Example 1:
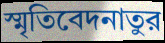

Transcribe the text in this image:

স্মৃতিবেদনাতুর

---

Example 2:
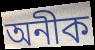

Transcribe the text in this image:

অনীক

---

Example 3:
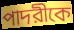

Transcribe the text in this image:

পাদরীকে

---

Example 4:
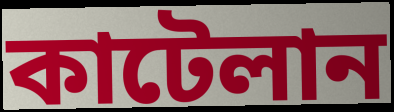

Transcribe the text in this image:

কাটেলান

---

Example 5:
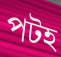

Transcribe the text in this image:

পটহ